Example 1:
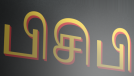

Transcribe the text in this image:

பிசிபி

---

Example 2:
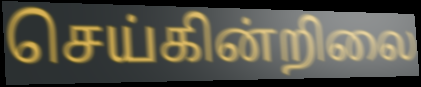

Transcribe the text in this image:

செய்கின்றிலை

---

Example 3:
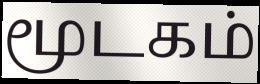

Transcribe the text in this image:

மூடகம்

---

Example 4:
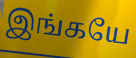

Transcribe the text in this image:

இங்கயே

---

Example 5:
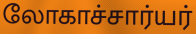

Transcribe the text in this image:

லோகாச்சார்யர்